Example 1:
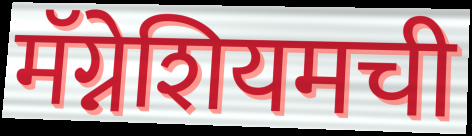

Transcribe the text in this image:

मॅग्नेशियमची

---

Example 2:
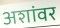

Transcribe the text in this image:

अशांवर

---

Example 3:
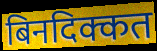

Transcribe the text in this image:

बिनदिक्कत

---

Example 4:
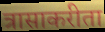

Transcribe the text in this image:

त्रासाकरीता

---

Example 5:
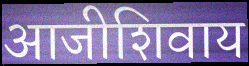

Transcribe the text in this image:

आजीशिवाय